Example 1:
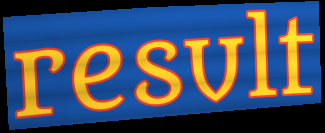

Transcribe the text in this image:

result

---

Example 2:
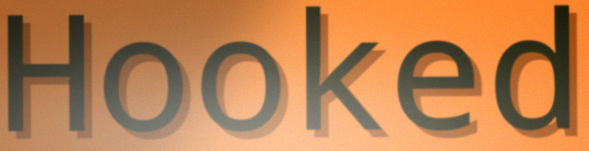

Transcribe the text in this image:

Hooked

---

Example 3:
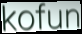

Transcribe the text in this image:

kofun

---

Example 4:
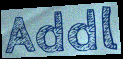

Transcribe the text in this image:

Addl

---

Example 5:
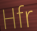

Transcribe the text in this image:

Hfr